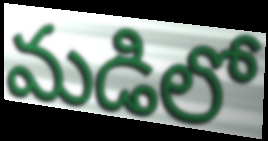
మడిలో